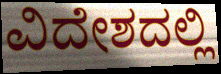
ವಿದೇಶದಲ್ಲಿ